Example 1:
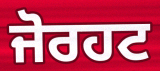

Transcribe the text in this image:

ਜੋਰਹਟ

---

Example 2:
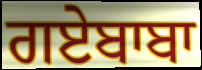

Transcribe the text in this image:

ਗਏਬਾਬਾ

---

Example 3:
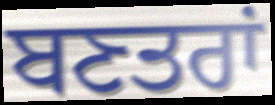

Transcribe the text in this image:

ਬਣਤਰਾਂ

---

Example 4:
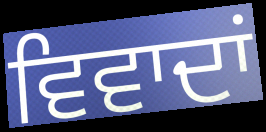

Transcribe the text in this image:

ਵਿਵਾਦਾਂ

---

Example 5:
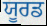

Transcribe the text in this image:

ਯੂਰਡ